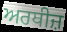
ਅਰਥੀਜ਼